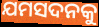
ଯମସଦନକୁ